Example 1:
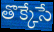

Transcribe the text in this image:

తొక్కేసే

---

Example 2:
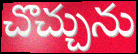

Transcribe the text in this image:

చొచ్చును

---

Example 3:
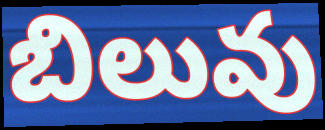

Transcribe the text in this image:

బిలువు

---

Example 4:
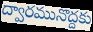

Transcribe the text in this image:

ద్వారమునొద్దకు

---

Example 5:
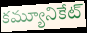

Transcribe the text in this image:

కమ్యూనికేట్